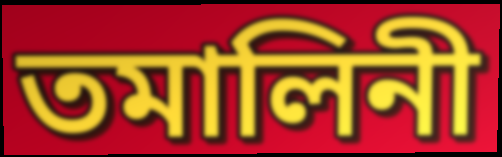
তমালিনী